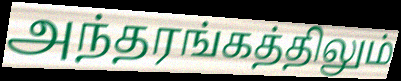
அந்தரங்கத்திலும்